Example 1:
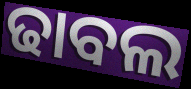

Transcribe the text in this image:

ଢାବଲ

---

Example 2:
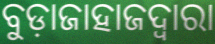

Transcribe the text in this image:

ବୁଡ଼ାଜାହାଜଦ୍ୱାରା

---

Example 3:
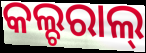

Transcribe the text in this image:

କଲ୍ଚରାଲ୍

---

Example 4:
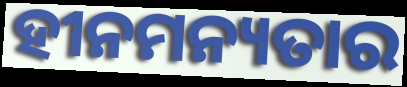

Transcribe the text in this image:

ହୀନମନ୍ୟତାର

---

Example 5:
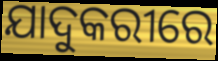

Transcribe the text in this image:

ଯାଦୁକରୀରେ